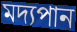
মদ্যপান